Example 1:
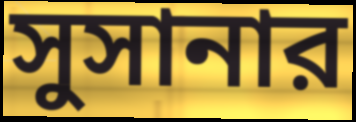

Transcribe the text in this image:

সুসানার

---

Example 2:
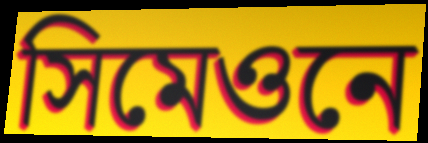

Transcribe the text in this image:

সিমেওনে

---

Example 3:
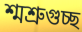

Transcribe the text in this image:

শ্মশ্রুগুচ্ছ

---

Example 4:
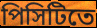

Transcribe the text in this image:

পিসিটিতে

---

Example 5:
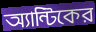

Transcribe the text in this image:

অ্যান্টিকের